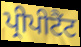
ਪ੍ਰੀਪੀਟੈਂਟ